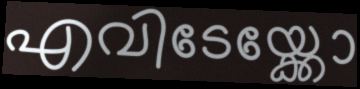
എവിടേയ്ക്കോ